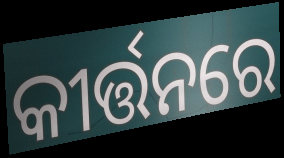
କୀର୍ତ୍ତନରେ